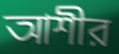
আশীর